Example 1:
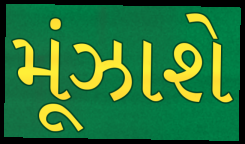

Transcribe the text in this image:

મૂંઝાશે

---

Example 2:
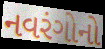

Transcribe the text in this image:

નવરંગોનો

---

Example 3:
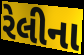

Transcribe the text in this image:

રેલીના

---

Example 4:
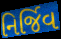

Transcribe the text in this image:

નિર્જિવ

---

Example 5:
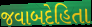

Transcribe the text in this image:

જવાબદેહિતા